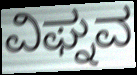
ವಿಘ್ನವ